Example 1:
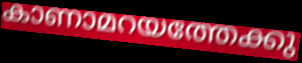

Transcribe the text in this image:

കാണാമറയത്തേക്കു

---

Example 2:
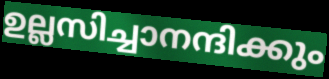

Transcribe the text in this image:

ഉല്ലസിച്ചാനന്ദിക്കും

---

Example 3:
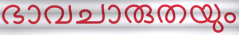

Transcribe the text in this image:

ഭാവചാരുതയും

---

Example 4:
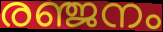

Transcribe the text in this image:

രഞ്ജനം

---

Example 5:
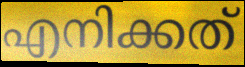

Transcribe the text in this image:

എനിക്കത്